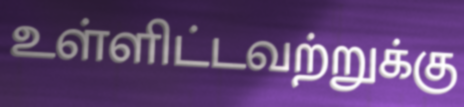
உள்ளிட்டவற்றுக்கு